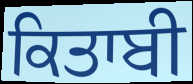
ਕਿਤਾਬੀ